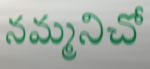
నమ్మనిచో